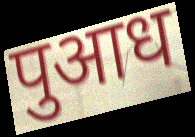
पुआध